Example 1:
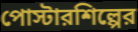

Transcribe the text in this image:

পোস্টারশিল্পের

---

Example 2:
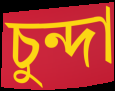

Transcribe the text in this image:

চুন্দা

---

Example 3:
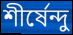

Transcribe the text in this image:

শীর্ষেন্দু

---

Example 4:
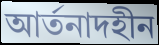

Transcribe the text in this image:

আর্তনাদহীন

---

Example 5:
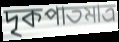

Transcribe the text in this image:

দৃকপাতমাত্র